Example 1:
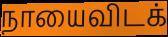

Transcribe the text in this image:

நாயைவிடக்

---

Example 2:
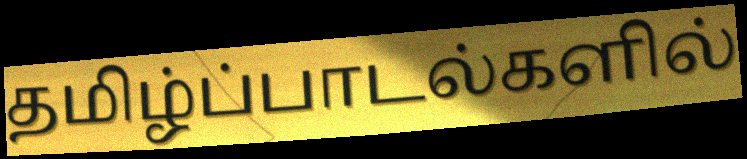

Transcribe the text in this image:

தமிழ்ப்பாடல்களில்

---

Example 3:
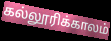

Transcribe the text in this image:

கல்லூரிக்காலம்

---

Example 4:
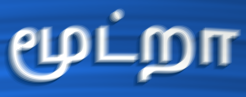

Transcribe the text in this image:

மூட்றா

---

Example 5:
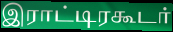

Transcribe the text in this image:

இராட்டிரகூடர்